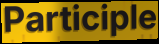
Participle